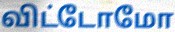
விட்டோமோ